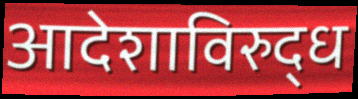
आदेशाविरुद्ध